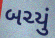
બચ્યું